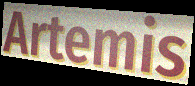
Artemis